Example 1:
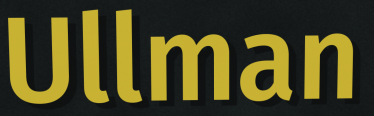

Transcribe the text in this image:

Ullman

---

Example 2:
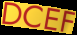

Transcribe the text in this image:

DCEF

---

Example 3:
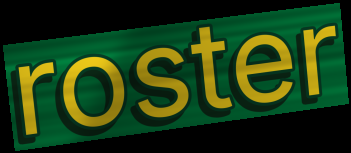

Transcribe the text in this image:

roster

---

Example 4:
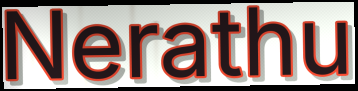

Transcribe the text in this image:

Nerathu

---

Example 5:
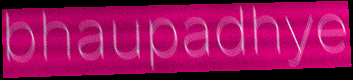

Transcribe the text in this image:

bhaupadhye